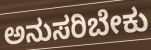
ಅನುಸರಿಬೇಕು